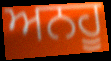
ਅਨਹੂ